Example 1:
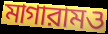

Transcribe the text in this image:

মাগারামও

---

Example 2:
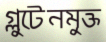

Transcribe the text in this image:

গ্লুটেনমুক্ত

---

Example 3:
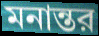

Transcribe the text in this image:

মনান্তর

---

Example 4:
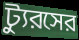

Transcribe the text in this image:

ট্যুরসের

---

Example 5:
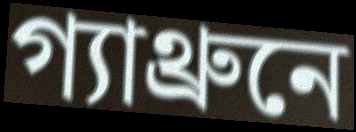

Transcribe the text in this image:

গ্যাথ্রুনে